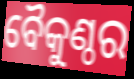
ବୈକୁଣ୍ଠର